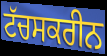
ਟੱਚਸਕਰੀਨ